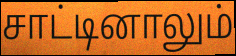
சாட்டினாலும்